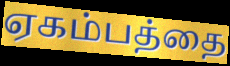
ஏகம்பத்தை